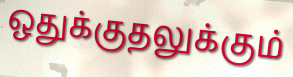
ஒதுக்குதலுக்கும்